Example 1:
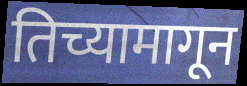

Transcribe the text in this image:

तिच्यामागून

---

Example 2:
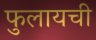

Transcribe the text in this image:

फुलायची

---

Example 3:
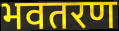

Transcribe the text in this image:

भवतरण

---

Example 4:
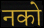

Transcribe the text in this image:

नको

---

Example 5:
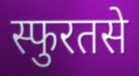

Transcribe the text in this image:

स्फुरतसे